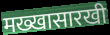
मख्खासारखी